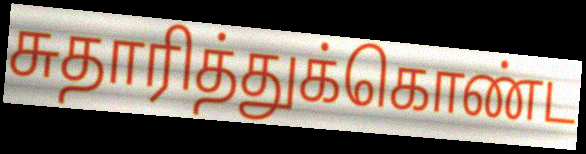
சுதாரித்துக்கொண்ட